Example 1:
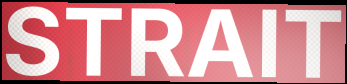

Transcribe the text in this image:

STRAIT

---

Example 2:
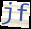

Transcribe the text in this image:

jf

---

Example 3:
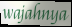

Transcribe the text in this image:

wajahnya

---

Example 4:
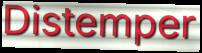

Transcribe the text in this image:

Distemper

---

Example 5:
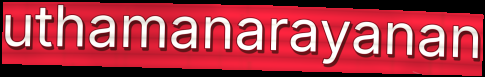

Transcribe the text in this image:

uthamanarayanan